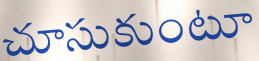
చూసుకుంటూ